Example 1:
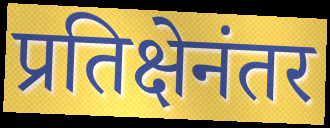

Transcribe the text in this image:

प्रतिक्षेनंतर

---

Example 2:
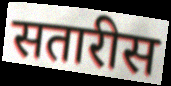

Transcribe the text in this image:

सतारीस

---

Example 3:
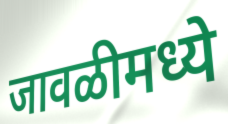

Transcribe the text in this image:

जावळीमध्ये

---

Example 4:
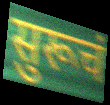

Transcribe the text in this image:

सुरूचं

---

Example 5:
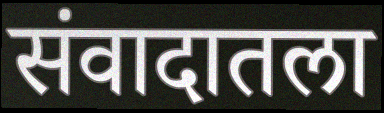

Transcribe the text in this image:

संवादातला